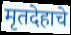
मृतदेहाचे